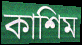
কাশিম